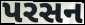
પરસન